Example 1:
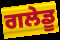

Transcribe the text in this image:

ਗਲੇਡੂ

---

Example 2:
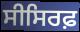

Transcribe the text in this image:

ਸੀਸਿਰਫ਼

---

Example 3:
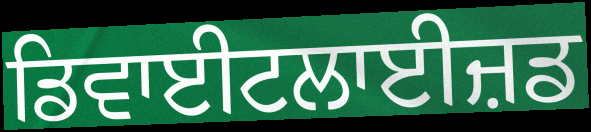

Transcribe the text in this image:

ਡਿਵਾਈਟਲਾਈਜ਼ਡ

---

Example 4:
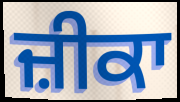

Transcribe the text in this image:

ਜ਼ੀਕਾ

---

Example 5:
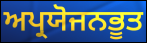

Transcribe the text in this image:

ਅਪ੍ਰਯੋਜਨਭੂਤ